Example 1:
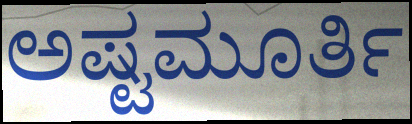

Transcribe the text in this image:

ಅಷ್ಟಮೂರ್ತಿ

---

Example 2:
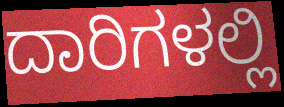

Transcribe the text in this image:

ದಾರಿಗಳಲ್ಲಿ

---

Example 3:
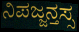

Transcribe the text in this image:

ನಿಪಜ್ಜನ್ತಸ್ಸ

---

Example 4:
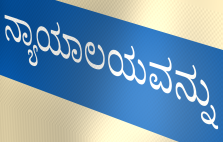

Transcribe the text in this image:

ನ್ಯಾಯಾಲಯವನ್ನು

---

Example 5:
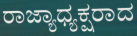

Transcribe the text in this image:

ರಾಜ್ಯಾಧ್ಯಕ್ಷರಾದ